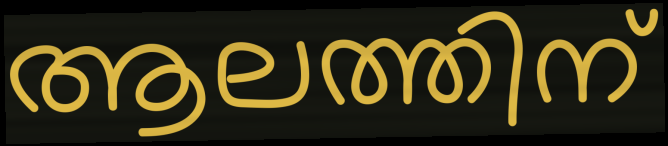
ആലത്തിന്